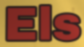
Els